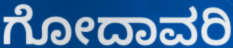
ಗೋದಾವರಿ